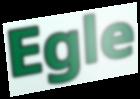
Egle